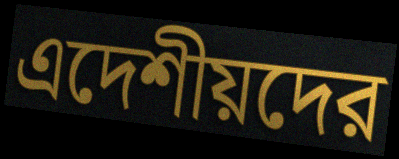
এদেশীয়দের